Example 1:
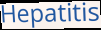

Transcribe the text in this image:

Hepatitis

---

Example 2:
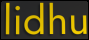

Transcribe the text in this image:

lidhu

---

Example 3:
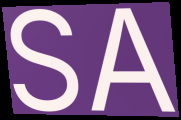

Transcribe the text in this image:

SA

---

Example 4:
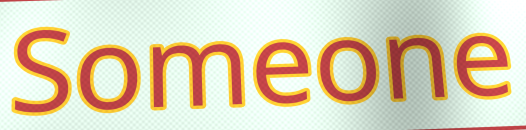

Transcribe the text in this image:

Someone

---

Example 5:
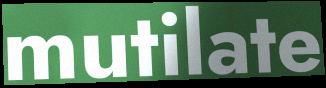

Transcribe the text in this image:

mutilate